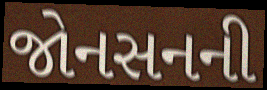
જોનસનની